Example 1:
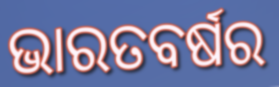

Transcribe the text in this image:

ଭାରତବର୍ଷର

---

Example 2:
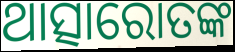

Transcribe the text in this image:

ଥାତ୍ସାରୋତଙ୍କ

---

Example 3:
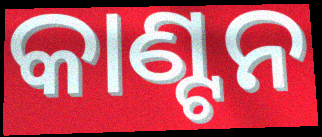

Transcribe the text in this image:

କାଣ୍ଟନ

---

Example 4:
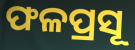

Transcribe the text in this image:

ଫଳପ୍ରସୂ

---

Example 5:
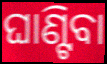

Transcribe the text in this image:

ଘାଣ୍ଟିବା